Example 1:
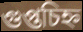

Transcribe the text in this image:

গুপ্তচিহ্ন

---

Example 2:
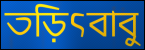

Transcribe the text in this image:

তড়িৎবাবু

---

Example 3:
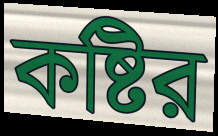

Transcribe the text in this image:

কষ্টির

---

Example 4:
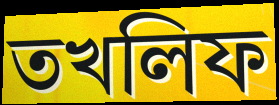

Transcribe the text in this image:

তখলিফ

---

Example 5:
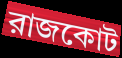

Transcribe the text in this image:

রাজকোট